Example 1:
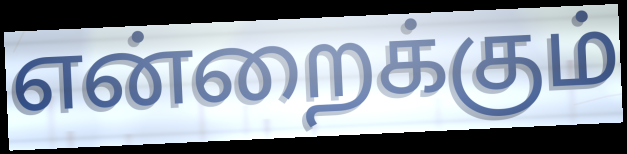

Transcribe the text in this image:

என்றைக்கும்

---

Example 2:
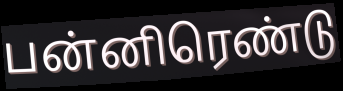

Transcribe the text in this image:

பன்னிரெண்டு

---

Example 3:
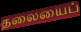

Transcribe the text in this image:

தலையைப்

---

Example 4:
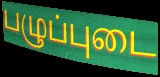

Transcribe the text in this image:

பழுப்புடை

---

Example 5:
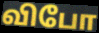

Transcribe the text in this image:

விபோ